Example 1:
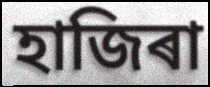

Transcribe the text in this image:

হাজিৰা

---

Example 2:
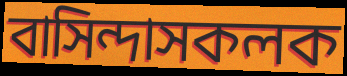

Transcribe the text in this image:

বাসিন্দাসকলক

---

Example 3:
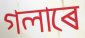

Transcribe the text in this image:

গলাৰে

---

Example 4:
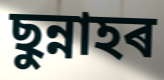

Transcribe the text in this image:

ছুন্নাহৰ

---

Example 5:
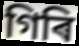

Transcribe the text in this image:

গিৰি